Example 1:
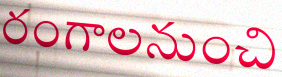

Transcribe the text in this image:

రంగాలనుంచి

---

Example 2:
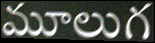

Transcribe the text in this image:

మూలుగ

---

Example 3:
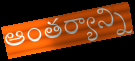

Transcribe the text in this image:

ఆంతర్యాన్ని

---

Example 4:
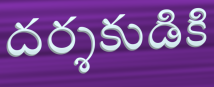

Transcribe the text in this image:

దర్శకుడికి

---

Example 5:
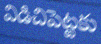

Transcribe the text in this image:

విడిచిపెట్టకు